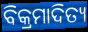
ବିକ୍ରମାଦିତ୍ୟ